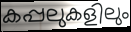
കപ്പലുകളിലും